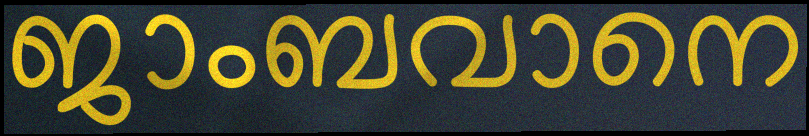
ജാംബവാനെ